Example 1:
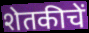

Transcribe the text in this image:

शेतकीचें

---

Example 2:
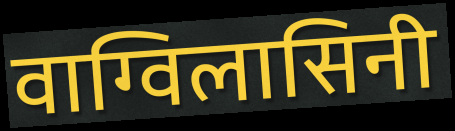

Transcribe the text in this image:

वाग्विलासिनी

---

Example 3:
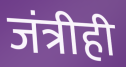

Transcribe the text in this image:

जंत्रीही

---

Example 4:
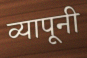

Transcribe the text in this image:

व्यापूनी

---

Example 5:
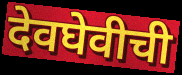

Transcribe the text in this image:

देवघेवीची